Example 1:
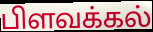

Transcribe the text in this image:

பிளவக்கல்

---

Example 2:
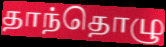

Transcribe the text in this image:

தாந்தொழு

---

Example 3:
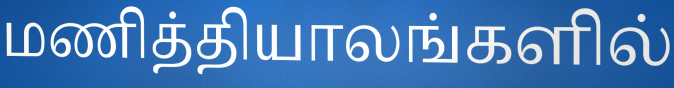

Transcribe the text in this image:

மணித்தியாலங்களில்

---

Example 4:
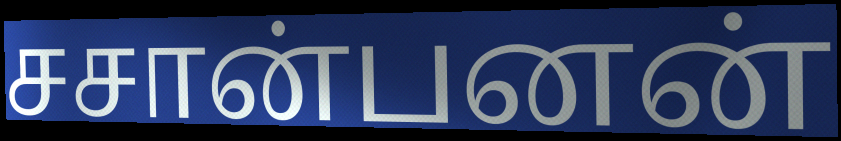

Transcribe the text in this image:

சசான்பனன்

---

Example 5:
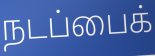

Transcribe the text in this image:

நடப்பைக்